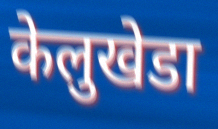
केलुखेडा